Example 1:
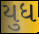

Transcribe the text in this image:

યુધ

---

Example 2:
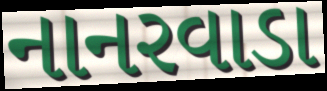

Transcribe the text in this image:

નાનરવાડા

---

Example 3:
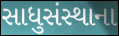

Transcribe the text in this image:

સાધુસંસ્થાના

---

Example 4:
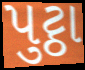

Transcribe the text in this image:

પુટ્ઠા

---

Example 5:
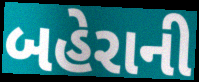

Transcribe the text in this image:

બહેરાની